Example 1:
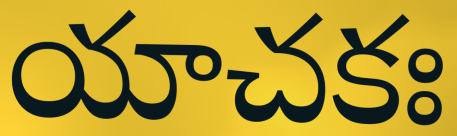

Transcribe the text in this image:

యాచకః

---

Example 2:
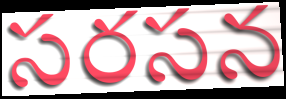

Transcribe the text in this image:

సరసన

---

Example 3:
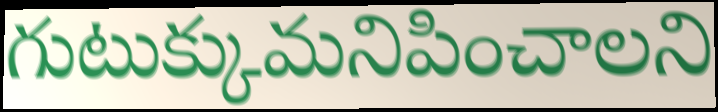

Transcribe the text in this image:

గుటుక్కుమనిపించాలని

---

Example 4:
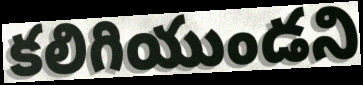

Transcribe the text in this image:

కలిగియుండని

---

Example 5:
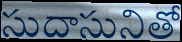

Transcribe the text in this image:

సుదాసునితో